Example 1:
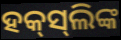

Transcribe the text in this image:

ହକ୍‌ସ୍‌ଲିଙ୍କ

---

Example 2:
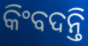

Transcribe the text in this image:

କିଂବଦନ୍ତି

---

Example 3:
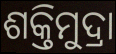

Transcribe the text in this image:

ଶକ୍ତିମୁଦ୍ରା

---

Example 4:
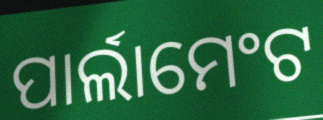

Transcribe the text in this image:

ପାର୍ଲାମେଂଟ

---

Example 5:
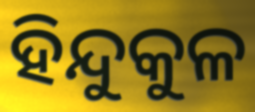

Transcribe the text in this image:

ହିନ୍ଦୁକୁଳ